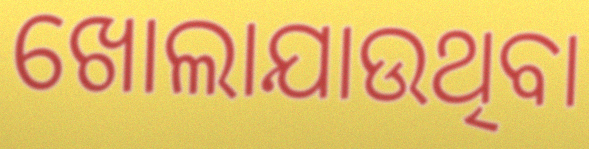
ଖୋଲାଯାଉଥିବା